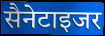
सैनेटाइजर